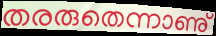
തരരുതെന്നാണു്